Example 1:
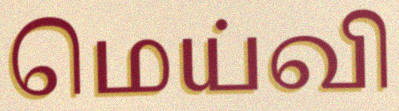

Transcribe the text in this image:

மெய்வி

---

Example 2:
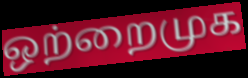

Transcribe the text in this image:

ஒற்றைமுக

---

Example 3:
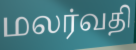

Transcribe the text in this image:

மலர்வதி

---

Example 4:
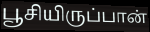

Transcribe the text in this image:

பூசியிருப்பான்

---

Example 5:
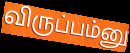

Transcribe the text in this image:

விருப்பம்னு